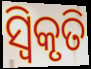
ସ୍ଵିକୃତି